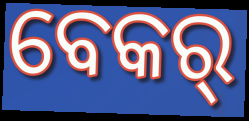
ବେକର୍